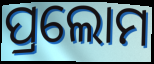
ପ୍ରଲୋମ